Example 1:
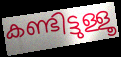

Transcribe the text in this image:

കണ്ടിട്ടുള്ളൂ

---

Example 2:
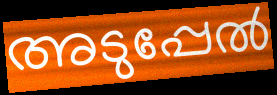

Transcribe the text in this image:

അടുപ്പേൽ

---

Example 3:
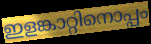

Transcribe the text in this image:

ഇളങ്കാറ്റിനൊപ്പം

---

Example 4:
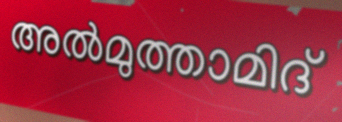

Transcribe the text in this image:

അൽമുത്താമിദ്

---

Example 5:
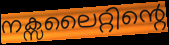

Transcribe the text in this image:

നക്സലൈറ്റിന്റെ